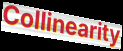
Collinearity